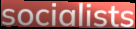
socialists